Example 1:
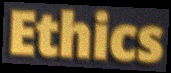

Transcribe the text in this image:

Ethics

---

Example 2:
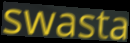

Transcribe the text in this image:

swasta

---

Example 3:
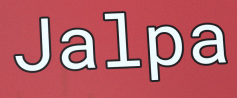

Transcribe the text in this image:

Jalpa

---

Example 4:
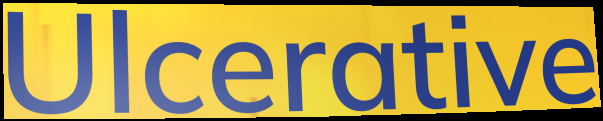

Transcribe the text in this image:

Ulcerative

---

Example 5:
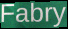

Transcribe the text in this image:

Fabry